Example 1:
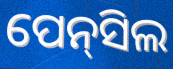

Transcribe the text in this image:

ପେନ୍‌ସିଲ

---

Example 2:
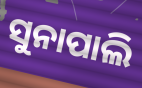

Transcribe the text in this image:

ସୁନାପାଲି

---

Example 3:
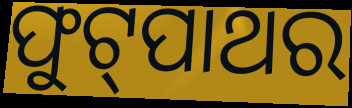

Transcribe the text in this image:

ଫୁଟ୍‌ପାଥର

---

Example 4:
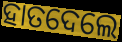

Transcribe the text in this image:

ହାତଦେଲେ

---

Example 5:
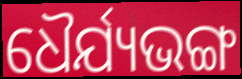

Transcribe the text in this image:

ଧୈର୍ଯ୍ୟଭଙ୍ଗ